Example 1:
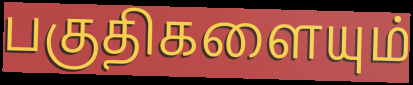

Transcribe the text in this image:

பகுதிகளையும்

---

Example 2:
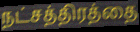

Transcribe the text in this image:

நட்சத்திரத்தை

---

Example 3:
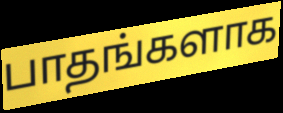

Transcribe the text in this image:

பாதங்களாக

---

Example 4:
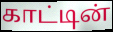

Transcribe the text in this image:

காட்டின்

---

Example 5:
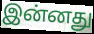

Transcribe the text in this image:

இன்னது